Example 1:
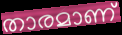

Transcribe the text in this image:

താരമാണ്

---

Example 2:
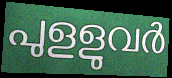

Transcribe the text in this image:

പുളളുവർ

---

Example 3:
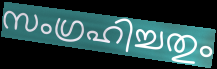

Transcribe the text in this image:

സംഗ്രഹിച്ചതും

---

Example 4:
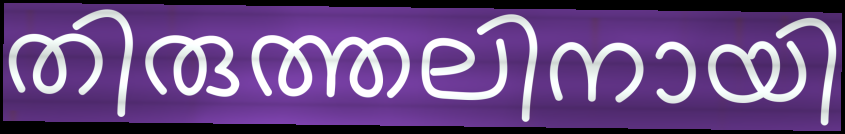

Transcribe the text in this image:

തിരുത്തലിനായി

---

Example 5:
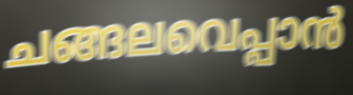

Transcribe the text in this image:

ചങ്ങലവെപ്പാൻ